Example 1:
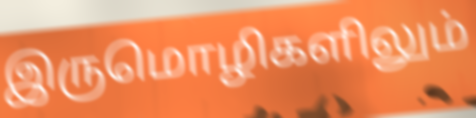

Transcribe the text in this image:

இருமொழிகளிலும்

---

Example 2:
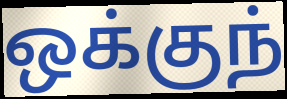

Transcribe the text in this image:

ஒக்குந்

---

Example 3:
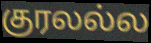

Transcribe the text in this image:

குரலல்ல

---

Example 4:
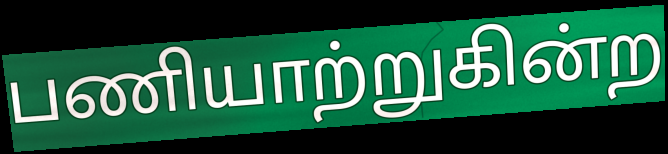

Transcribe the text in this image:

பணியாற்றுகின்ற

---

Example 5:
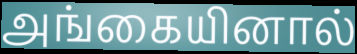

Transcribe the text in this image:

அங்கையினால்